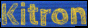
Kitron